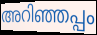
അറിഞ്ഞപ്പം